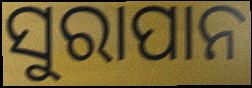
ସୁରାପାନ